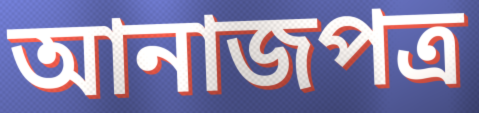
আনাজপত্র